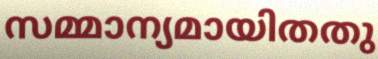
സമ്മാന്യമായിതതു